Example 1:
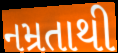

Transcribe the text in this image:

નમ્રતાથી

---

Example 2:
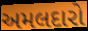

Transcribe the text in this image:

અમલદારો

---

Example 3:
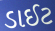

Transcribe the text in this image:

ડાઈટ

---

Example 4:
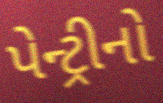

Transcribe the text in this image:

પેન્ટ્રીનો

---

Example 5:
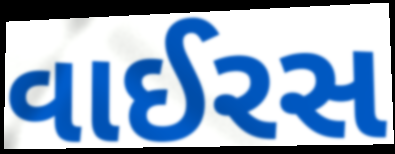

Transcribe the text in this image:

વાઈરસ